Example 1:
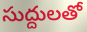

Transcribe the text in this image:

సుద్దులతో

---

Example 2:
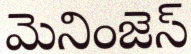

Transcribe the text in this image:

మెనింజెస్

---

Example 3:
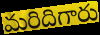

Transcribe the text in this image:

మరిదిగారు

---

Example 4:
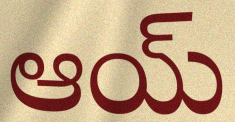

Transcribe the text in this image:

ఆయ్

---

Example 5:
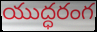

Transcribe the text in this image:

యుద్ధరంగ